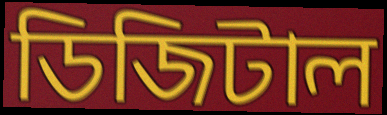
ডিজিটাল